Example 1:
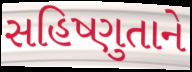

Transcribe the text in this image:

સહિષ્ણુતાને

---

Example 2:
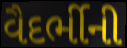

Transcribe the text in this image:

વૈદર્ભીની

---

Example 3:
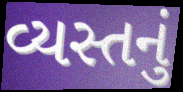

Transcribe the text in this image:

વ્યસ્તનું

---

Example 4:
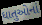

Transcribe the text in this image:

ધાતુઓનાં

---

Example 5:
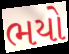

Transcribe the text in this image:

ભયો